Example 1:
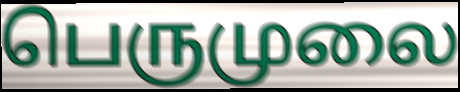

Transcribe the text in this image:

பெருமுலை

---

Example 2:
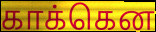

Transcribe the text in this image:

காக்கென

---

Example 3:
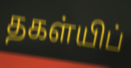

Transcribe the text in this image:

தகள்யிப்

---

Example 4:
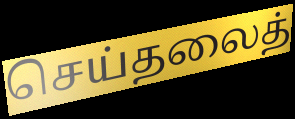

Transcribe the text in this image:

செய்தலைத்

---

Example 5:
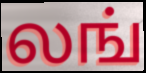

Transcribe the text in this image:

லங்